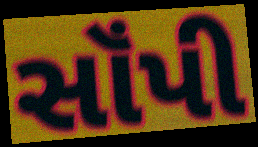
સૉંપી